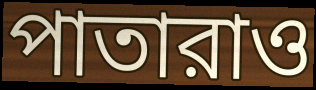
পাতারাও